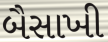
બૈસાખી